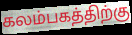
கலம்பகத்திற்கு